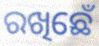
ରଖିଛେଁ